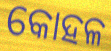
କୋହଳ